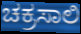
ಚಕ್ರಸಾಲಿ